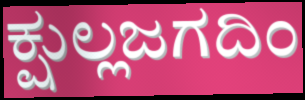
ಕ್ಷುಲ್ಲಜಗದಿಂ